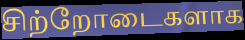
சிற்றோடைகளாக